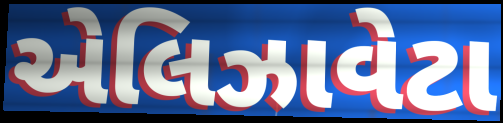
એલિઝાવેટા